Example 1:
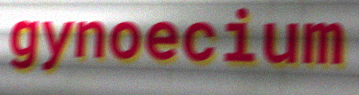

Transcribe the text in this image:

gynoecium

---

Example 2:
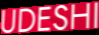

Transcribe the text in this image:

UDESHI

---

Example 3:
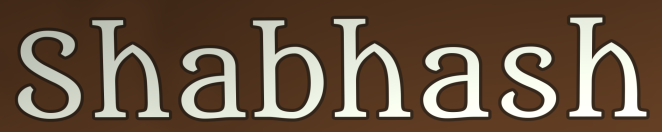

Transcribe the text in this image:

Shabhash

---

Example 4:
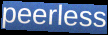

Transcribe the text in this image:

peerless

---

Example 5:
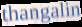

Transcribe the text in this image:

thangalin